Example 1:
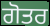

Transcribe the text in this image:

ਗੋਤਰ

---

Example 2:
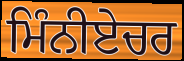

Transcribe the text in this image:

ਮਿੰਨੀਏਚਰ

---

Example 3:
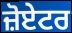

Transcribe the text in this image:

ਜ਼ੋਏਟਰ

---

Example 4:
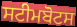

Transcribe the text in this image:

ਸਟੀਮਬੋਟਸ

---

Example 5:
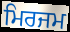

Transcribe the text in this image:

ਮਿਰਜਮ